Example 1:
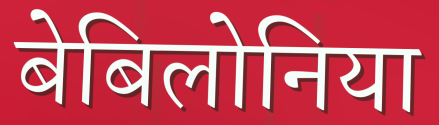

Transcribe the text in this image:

बेबिलोनिया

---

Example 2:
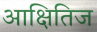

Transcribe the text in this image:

आक्षितिज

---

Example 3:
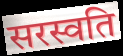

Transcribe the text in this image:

सरस्वति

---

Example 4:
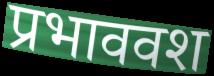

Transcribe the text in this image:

प्रभाववश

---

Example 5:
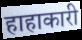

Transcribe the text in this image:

हाहाकारी